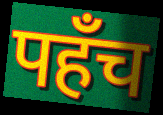
पहँच